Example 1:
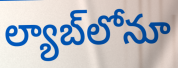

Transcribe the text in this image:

ల్యాబ్‌లోనూ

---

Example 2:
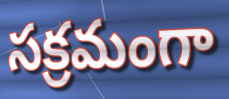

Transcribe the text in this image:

సక్రమంగా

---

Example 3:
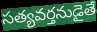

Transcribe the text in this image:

సత్యవర్తనుడైతే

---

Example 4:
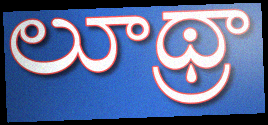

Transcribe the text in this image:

లూథ్రా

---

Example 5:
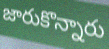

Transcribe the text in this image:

జారుకొన్నారు